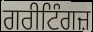
ਗਰੀਟਿੰਗਜ਼